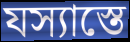
যস্যাস্তে